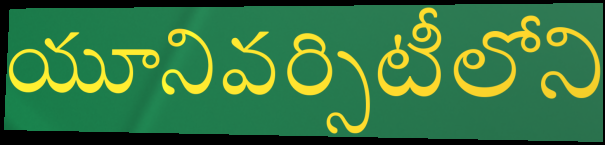
యూనివర్సిటీలోని